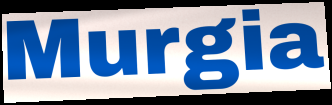
Murgia